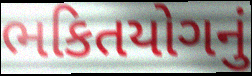
ભકિતયોગનું